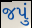
જપું